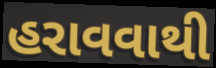
હરાવવાથી